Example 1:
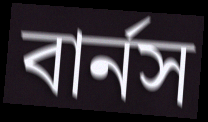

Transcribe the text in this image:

বার্নস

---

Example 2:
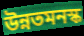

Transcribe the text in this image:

উন্নতমনস্ক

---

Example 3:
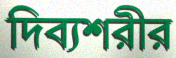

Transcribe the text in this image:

দিব্যশরীর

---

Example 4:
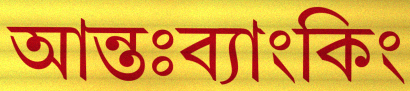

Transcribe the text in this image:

আন্তঃব্যাংকিং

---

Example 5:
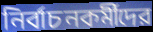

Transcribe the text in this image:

নির্বাচনকর্মীদের